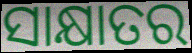
ସାକ୍ଷାତର